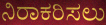
ನಿರಾಕರಿಸಲು